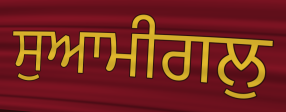
ਸੁਆਮੀਗਲੁ